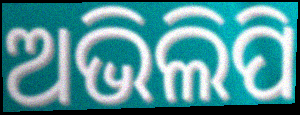
ଅଭିଲିପି